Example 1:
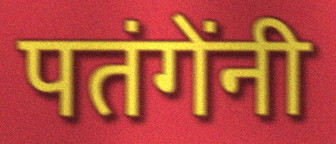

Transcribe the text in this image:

पतंगेंनी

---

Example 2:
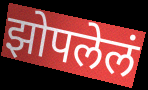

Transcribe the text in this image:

झोपलेलं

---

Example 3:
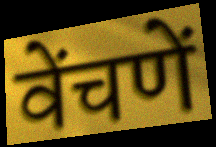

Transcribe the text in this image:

वेंचणें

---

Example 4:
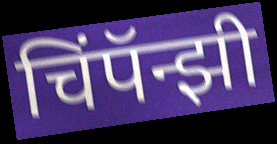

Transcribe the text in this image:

चिंपॅन्झी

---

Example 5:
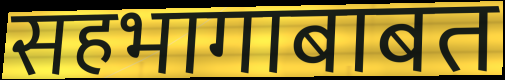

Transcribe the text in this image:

सहभागाबाबत